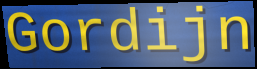
Gordijn